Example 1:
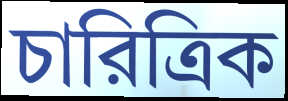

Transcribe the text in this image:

চারিত্রিক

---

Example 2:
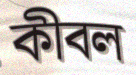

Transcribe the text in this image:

কীবল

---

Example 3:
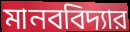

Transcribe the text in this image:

মানববিদ্যার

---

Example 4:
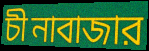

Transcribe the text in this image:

চীনাবাজার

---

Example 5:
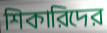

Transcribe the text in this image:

শিকারিদের